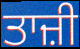
ਤਾਜ਼ੀ